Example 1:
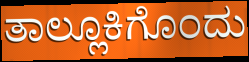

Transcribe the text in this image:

ತಾಲ್ಲೂಕಿಗೊಂದು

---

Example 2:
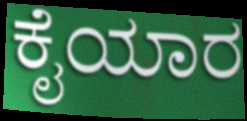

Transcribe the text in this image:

ಕೈಯಾರ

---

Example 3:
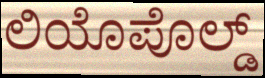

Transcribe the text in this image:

ಲಿಯೊಪೊಲ್ಡ್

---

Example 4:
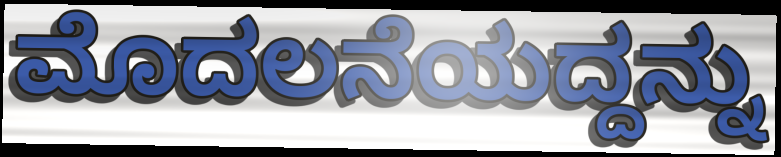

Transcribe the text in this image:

ಮೊದಲನೆಯದ್ದನ್ನು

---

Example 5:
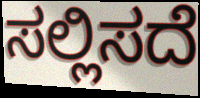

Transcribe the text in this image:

ಸಲ್ಲಿಸದೆ